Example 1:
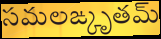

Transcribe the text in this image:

సమలఙ్కృతమ్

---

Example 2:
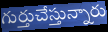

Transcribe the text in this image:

గుర్తుచేస్తున్నారు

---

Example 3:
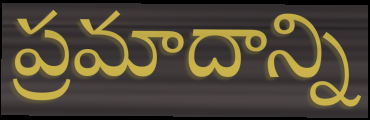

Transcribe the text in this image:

ప్రమాదాన్ని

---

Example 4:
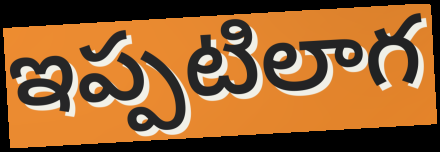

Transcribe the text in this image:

ఇప్పటిలాగ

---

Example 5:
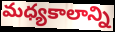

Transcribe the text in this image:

మధ్యకాలాన్ని